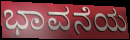
ಭಾವನೆಯ